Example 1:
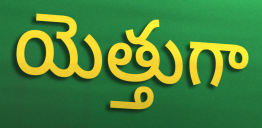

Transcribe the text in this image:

యెత్తుగా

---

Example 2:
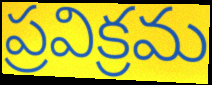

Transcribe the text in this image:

ప్రవిక్రమ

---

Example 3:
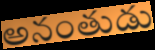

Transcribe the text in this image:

అనంతుడు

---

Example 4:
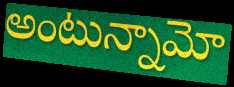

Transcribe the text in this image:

అంటున్నామో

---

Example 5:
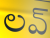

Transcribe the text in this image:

లవ్